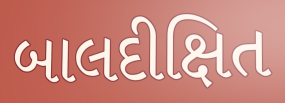
બાલદીક્ષિત